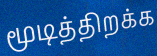
மூடித்திறக்க